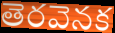
తెరవెనక